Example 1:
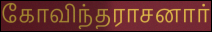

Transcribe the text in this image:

கோவிந்தராசனார்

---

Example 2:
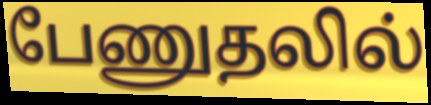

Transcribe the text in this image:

பேணுதலில்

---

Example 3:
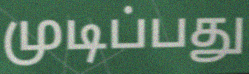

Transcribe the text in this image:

முடிப்பது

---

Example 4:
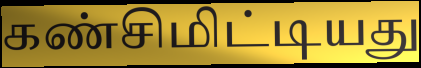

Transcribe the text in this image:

கண்சிமிட்டியது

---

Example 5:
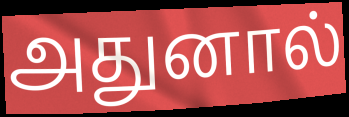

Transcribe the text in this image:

அதுனால்